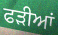
ਫੜੀਆਂ